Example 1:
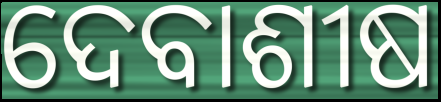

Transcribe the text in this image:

ଦେବାଶୀଷ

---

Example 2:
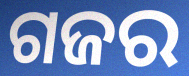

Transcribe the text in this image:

ଗଜର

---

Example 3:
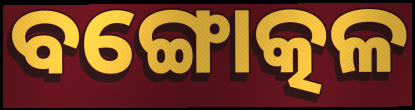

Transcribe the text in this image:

ବଙ୍ଗୋତ୍କଳ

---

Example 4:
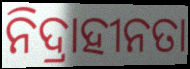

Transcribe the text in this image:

ନିଦ୍ରାହୀନତା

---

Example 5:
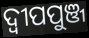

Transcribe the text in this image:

ଦ୍ୱୀପପୁଞ୍ଜ